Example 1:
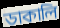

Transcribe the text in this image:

ডাকালি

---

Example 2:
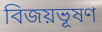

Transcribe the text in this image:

বিজয়ভূষণ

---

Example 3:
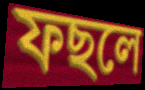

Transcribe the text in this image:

ফছলে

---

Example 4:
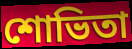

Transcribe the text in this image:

শোভিতা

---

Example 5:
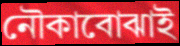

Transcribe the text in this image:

নৌকাবোঝাই